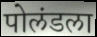
पोलंडला